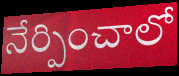
నేర్పించాలో